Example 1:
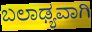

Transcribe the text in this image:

ಬಲಾಢ್ಯವಾಗಿ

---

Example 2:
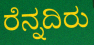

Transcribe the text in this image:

ರೆನ್ನದಿರು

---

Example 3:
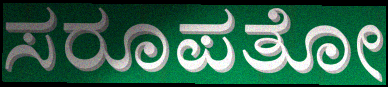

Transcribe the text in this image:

ಸರೂಪತೋ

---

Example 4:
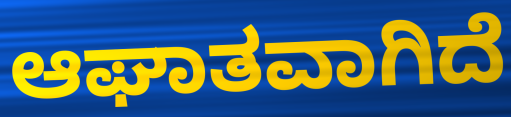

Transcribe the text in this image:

ಆಘಾತವಾಗಿದೆ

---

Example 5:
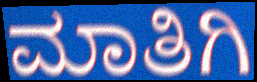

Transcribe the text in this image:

ಮಾತಿಗಿ